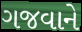
ગજવાને